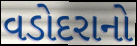
વડોદરાનો